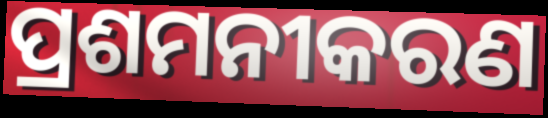
ପ୍ରଶମନୀକରଣ